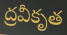
ద్రవీకృత